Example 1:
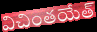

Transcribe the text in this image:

విచింతయేత్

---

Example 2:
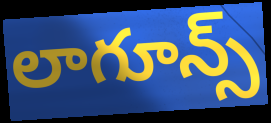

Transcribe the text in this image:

లాగూన్స్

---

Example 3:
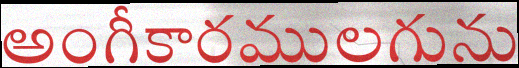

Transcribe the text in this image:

అంగీకారములగును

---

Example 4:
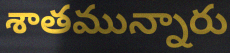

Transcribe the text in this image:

శాతమున్నారు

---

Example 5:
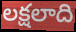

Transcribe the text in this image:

లక్షలాది